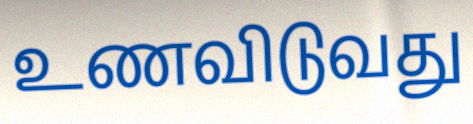
உணவிடுவது